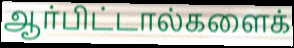
ஆர்பிட்டால்களைக்